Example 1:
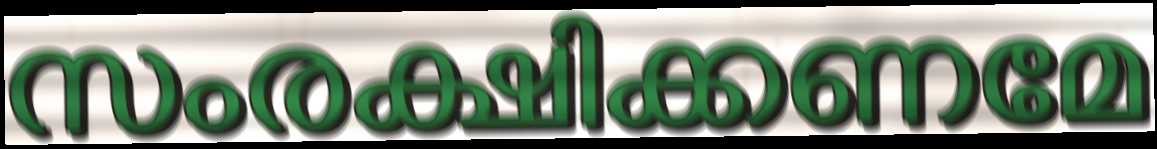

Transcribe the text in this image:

സംരക്ഷിക്കണമേ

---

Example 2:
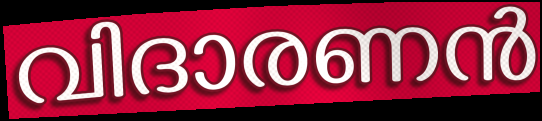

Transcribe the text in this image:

വിദാരണൻ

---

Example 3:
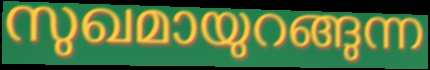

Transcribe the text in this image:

സുഖമായുറങ്ങുന്ന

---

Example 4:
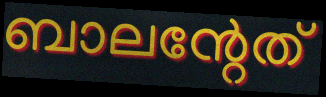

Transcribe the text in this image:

ബാലന്റേത്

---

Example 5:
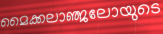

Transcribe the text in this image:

മൈക്കലാഞ്ജലോയുടെ